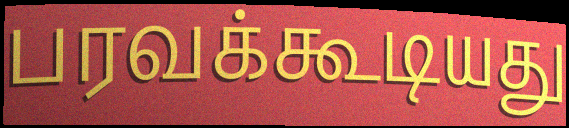
பரவக்கூடியது